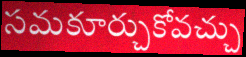
సమకూర్చుకోవచ్చు